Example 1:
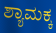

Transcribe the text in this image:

ಶ್ಯಾಮಕ್ಕ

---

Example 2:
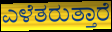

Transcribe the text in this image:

ಎಳೆತರುತ್ತಾರೆ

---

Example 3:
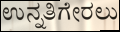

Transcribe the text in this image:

ಉನ್ನತಿಗೇರಲು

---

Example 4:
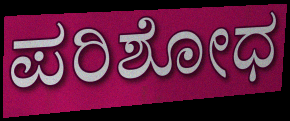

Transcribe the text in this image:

ಪರಿಶೋಧ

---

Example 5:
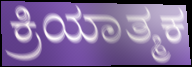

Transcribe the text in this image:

ಕ್ರಿಯಾತ್ಮಕ